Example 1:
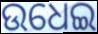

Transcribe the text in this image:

ଉଧେଇ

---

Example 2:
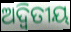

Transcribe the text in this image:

ଅଦ୍ୱିତୀୟ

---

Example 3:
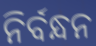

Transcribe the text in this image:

ନିର୍ବନ୍ଧନ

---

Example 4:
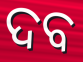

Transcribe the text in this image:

ଦବ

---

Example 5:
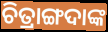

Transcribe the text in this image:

ଚିତ୍ରାଙ୍ଗଦାଙ୍କ